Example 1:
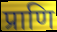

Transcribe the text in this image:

प्राणि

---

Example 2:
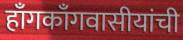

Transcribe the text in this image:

हाँगकाँगवासीयांची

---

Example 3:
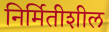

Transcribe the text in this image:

निर्मितीशील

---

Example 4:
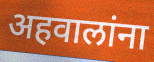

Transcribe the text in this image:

अहवालांना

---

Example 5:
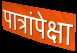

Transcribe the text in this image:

पात्रांपेक्षा